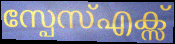
സ്പേസ്എക്സ്